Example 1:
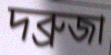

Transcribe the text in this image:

দব্রুজা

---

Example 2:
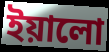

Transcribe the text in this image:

ইয়ালো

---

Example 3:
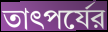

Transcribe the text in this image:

তাৎপর্যের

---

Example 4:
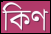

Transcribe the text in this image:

কিণ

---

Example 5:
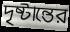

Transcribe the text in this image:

দৃষ্টান্তের